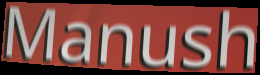
Manush